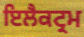
ਇਲੈਕਟ੍ਰਮ